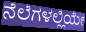
ನೆಲೆಗಳಲ್ಲಿಯೇ